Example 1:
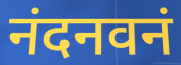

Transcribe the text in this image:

नंदनवनं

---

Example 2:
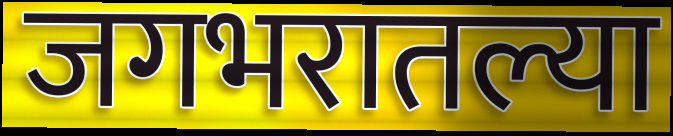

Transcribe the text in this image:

जगभरातल्या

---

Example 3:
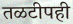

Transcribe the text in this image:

तळटीपही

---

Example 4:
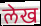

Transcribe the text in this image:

लेख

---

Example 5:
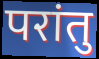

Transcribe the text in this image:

परांतु